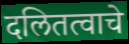
दलितत्वाचे